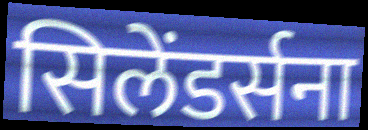
सिलेंडर्सना